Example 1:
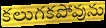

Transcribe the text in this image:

కలుగకపోవును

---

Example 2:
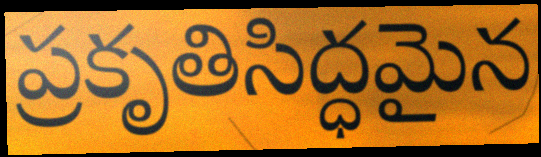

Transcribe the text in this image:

ప్రకృతిసిద్ధమైన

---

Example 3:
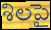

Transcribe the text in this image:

శిలపై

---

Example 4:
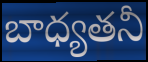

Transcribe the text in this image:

బాధ్యతనీ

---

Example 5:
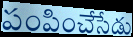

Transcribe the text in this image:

పంపించేసేడు